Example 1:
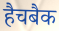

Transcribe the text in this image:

हैचबैक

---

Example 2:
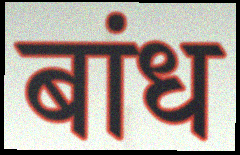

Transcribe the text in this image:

बांध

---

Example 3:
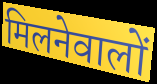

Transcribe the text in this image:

मिलनेवालों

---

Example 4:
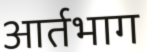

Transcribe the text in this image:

आर्तभाग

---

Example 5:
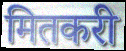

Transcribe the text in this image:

मितकरी